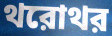
থরোথর